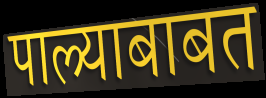
पाल्याबाबत